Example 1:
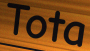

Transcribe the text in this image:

Tota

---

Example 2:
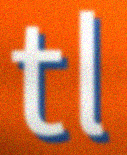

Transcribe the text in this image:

tl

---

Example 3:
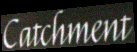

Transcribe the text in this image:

Catchment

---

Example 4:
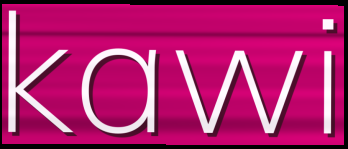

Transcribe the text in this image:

kawi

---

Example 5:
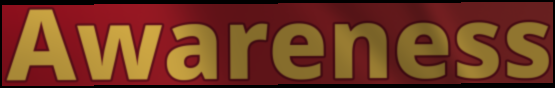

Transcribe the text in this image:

Awareness